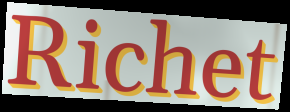
Richet